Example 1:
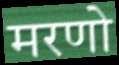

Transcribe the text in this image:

मरणो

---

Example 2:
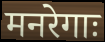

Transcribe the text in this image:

मनरेगाः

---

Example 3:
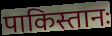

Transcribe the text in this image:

पाकिस्तानः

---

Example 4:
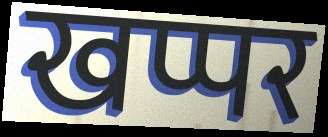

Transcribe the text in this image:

खप्पर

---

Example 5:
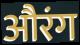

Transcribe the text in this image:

औरंग